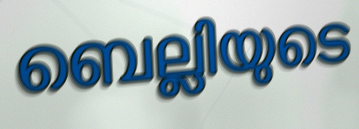
ബെല്ലിയുടെ